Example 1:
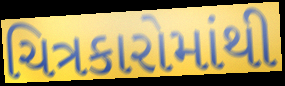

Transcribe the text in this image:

ચિત્રકારોમાંથી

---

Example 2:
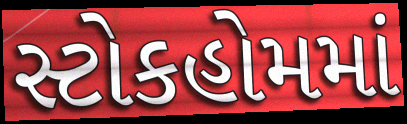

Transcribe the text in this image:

સ્ટોકહોમમાં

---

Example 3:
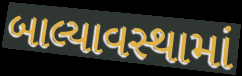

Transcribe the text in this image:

બાલ્યાવસ્થામાં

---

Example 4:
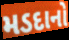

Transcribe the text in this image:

મડદાનો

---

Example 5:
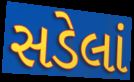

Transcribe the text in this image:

સડેલાં